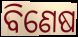
ବିଣେଷ